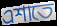
এশাতে